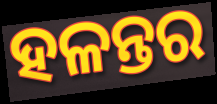
ହଳନ୍ତର